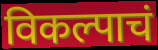
विकल्पाचं